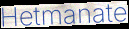
Hetmanate